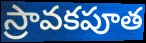
స్రావకపూత